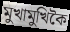
মুখামুখিকৈ